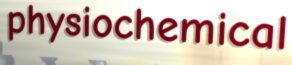
physiochemical